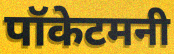
पॉकेटमनी